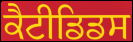
ਕੈਟੀਡਿਡਸ